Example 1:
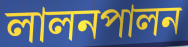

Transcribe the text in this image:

লালনপালন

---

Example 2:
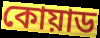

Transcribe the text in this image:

কোয়াড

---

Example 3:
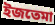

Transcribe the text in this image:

ইজতেমা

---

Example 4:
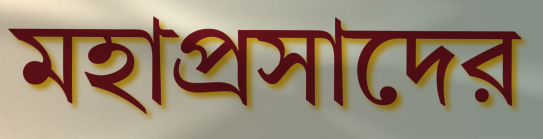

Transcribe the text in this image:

মহাপ্রসাদের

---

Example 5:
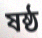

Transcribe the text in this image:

ষষ্ঠ